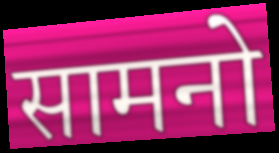
सामनो